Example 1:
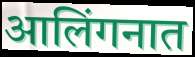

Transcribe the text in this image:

आलिंगनात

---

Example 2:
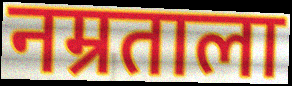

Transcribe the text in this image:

नम्रताला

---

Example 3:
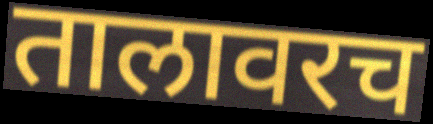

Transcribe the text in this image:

तालावरच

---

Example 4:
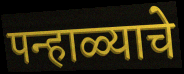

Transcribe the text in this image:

पन्हाळ्याचे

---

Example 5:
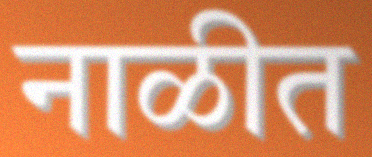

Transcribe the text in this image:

नाळीत